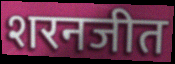
शरनजीत